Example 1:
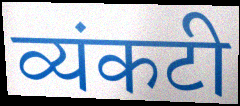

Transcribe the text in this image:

व्यंकटी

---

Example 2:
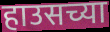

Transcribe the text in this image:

हाउसच्या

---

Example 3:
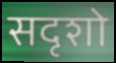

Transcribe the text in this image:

सदृशो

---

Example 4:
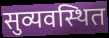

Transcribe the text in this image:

सुव्यवस्थित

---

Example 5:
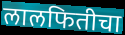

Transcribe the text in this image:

लालफितीचा